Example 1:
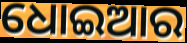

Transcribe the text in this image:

ଧୋଇଆର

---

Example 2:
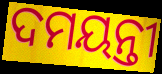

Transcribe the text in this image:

ଦମୟନ୍ତୀ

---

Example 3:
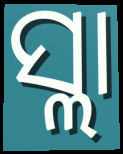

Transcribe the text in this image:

ସ୍ଲା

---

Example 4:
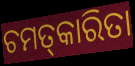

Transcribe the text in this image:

ଚମତ୍‌କାରିତା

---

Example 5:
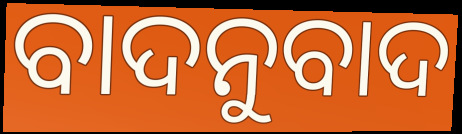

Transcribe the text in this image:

ବାଦନୁବାଦ